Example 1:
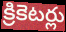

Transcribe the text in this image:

క్రికెటర్లు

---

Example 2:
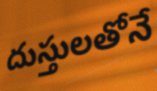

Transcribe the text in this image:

దుస్తులతోనే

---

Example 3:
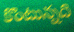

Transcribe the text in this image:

కొంటున్నది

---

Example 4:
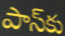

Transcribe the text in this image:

పాస్‌కు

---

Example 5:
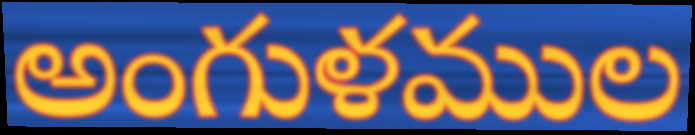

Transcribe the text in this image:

అంగుళముల